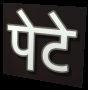
पेटे